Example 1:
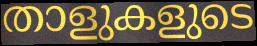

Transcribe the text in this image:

താളുകളുടെ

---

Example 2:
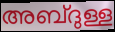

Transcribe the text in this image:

അബ്ദുള്ള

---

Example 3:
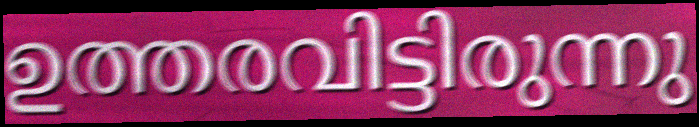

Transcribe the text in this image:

ഉത്തരവിട്ടിരുന്നു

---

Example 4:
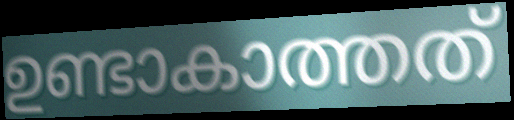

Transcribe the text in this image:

ഉണ്ടാകാത്തത്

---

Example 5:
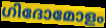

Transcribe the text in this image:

ഗിദോമോളം